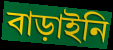
বাড়াইনি